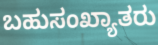
ಬಹುಸಂಖ್ಯಾತರು